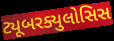
ટ્યૂબરક્યુલોસિસ